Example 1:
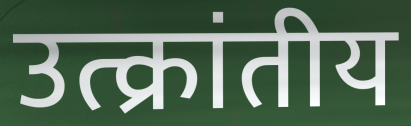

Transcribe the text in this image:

उत्क्रांतीय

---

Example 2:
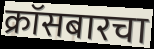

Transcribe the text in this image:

क्रॉसबारचा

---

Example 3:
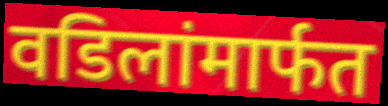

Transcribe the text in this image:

वडिलांमार्फत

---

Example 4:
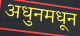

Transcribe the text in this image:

अधुनमधून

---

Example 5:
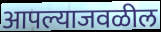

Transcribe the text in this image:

आपल्याजवळील